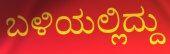
ಬಳಿಯಲ್ಲಿದ್ದು